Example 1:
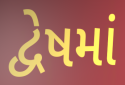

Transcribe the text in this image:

દ્વેષમાં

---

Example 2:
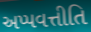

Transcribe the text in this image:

અપ્પવત્તીતિ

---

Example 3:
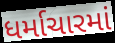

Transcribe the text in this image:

ધર્માચારમાં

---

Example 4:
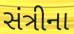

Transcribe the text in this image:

સંત્રીના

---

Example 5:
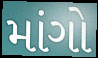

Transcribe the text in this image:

માંગો